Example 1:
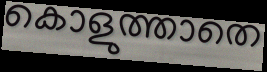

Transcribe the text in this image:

കൊളുത്താതെ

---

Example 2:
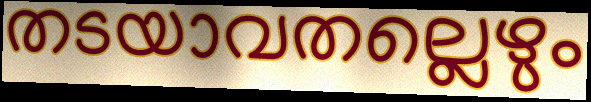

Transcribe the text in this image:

തടയാവതല്ലെഴും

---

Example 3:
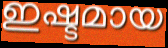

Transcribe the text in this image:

ഇഷ്ടമായ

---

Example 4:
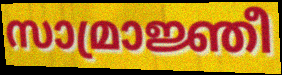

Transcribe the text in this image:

സാമ്രാജ്ഞീ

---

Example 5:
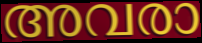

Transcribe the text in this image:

അവരാ